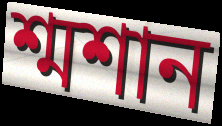
শ্মশান